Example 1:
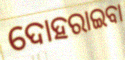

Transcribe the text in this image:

ଦୋହରାଇବା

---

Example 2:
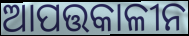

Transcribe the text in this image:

ଆପତ୍ତକାଳୀନ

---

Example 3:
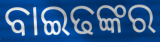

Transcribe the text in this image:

ବାଇଢଙ୍କର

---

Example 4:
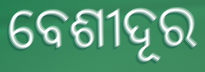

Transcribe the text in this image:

ବେଶୀଦୂର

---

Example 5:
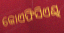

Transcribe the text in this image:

କୋଏଫିସିଏଣ୍ଟ୍